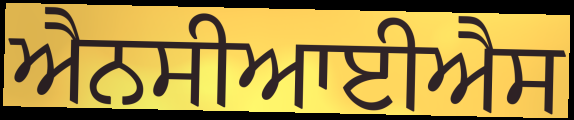
ਐਨਸੀਆਈਐਸ